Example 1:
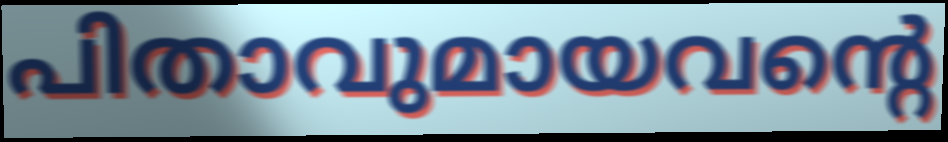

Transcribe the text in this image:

പിതാവുമായവന്റെ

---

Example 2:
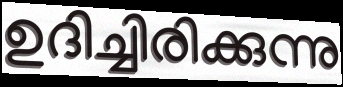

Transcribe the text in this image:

ഉദിച്ചിരിക്കുന്നു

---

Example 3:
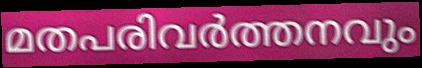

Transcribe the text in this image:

മതപരിവർത്തനവും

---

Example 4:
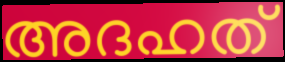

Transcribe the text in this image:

അദഹത്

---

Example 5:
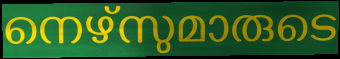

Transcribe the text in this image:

നെഴ്സുമാരുടെ